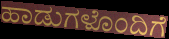
ಹಾಡುಗಳೊಂದಿಗೆ